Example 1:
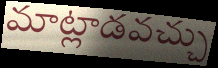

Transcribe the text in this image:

మాట్లాడవచ్చు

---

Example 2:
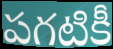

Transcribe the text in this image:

పగటికీ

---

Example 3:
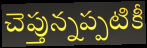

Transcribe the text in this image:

చెప్తున్నప్పటికీ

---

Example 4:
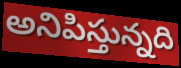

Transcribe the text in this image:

అనిపిస్తున్నది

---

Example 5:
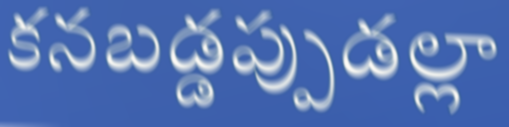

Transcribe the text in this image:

కనబడ్డప్పుడల్లా